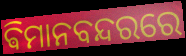
ଵିମାନବନ୍ଦରରେ